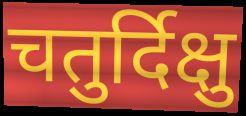
चतुर्दिक्षु